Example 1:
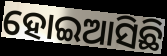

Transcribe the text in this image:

ହୋଇଆସିଛି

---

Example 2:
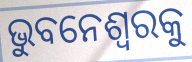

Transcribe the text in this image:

ଭୁବନେଶ୍ୱରକୁ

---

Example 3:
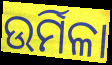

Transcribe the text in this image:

ଉର୍ମିଳା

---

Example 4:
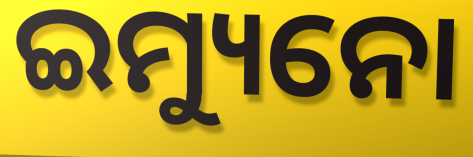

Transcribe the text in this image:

ଇମ୍ୟୁନୋ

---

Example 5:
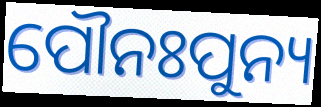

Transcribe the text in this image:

ପୌନଃପୁନ୍ୟ